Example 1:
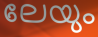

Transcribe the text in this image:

ലേയും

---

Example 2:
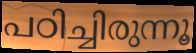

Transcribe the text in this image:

പഠിച്ചിരുന്നൂ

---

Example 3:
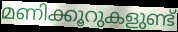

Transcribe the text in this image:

മണിക്കൂറുകളുണ്ട്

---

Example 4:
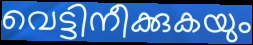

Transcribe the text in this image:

വെട്ടിനീക്കുകയും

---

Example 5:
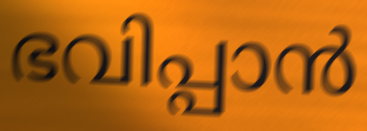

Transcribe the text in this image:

ഭവിപ്പാൻ